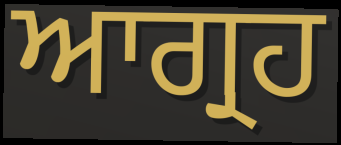
ਆਗ੍ਰਹ